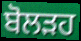
ਬੋਲੜਹ